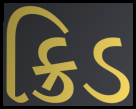
ક્રિડ